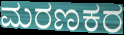
ಮರಣಕರ